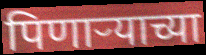
पिणाऱ्याच्या